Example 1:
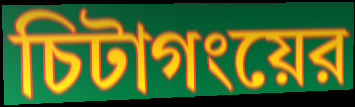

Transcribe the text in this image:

চিটাগংয়ের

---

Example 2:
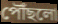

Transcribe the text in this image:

পৌঁছলো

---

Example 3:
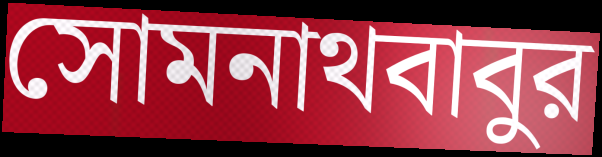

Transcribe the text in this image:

সোমনাথবাবুর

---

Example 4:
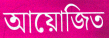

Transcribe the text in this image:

আয়োজিত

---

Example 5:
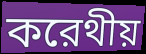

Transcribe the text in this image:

করেথীয়